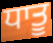
ਧਾਤੂ